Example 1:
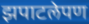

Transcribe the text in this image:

झपाटलेपण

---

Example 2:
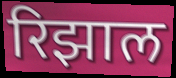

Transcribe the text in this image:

रिझाल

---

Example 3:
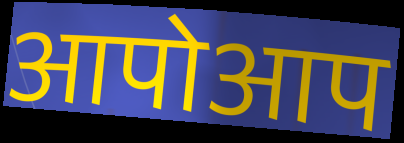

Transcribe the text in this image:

आपोआप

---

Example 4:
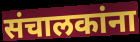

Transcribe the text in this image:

संचालकांना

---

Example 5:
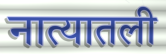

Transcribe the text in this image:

नात्यातली